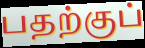
பதற்குப்